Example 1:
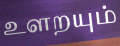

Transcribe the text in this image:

உளறயும்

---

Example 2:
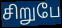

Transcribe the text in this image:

சிறுபே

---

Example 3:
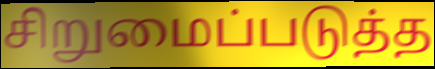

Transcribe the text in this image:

சிறுமைப்படுத்த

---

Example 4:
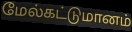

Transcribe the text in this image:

மேல்கட்டுமானம்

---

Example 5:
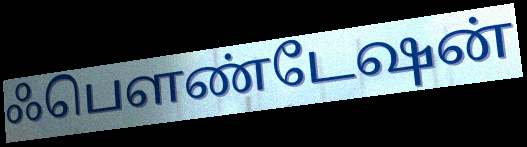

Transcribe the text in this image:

ஃபௌண்டேஷன்